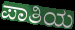
ಪಾತಿಯ